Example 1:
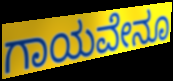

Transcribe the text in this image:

ಗಾಯವೇನೂ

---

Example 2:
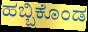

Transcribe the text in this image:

ಹಬ್ಬಿಕೊಂಡ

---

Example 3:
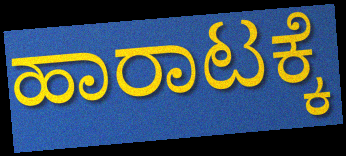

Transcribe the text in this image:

ಹಾರಾಟಕ್ಕೆ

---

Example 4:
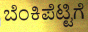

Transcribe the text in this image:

ಬೆಂಕಿಪೆಟ್ಟಿಗೆ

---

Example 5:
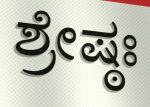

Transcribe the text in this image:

ಶ್ರೇಷ್ಠಃ